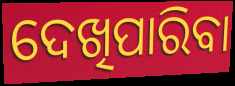
ଦେଖିପାରିବା